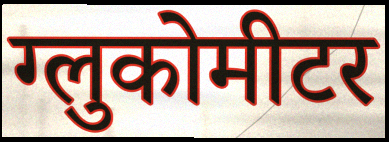
ग्लुकोमीटर